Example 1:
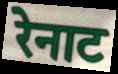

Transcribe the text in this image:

रेनाट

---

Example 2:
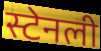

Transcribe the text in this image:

स्‍टेनली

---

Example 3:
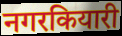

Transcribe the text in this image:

नगरकियारी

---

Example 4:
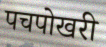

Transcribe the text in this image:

पचपोखरी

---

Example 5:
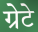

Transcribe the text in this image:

ग्रेटे